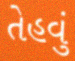
તેહવું